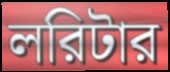
লরিটার